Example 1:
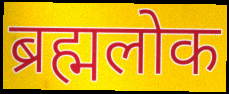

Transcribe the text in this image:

ब्रह्मलोक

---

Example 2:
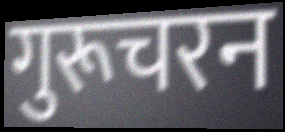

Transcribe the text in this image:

गुरूचरन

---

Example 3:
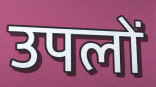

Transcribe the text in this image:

उपलों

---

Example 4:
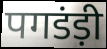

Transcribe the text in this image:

पगडंड़ी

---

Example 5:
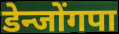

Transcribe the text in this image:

डेन्जोंगपा